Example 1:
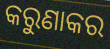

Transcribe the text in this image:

କରୁଣାକର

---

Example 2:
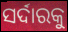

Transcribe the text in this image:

ସର୍ଦାରକୁ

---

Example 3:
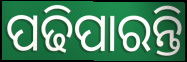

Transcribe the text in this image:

ପଢିପାରନ୍ତି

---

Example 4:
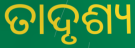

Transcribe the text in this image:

ତାଦୃଶ୍ୟ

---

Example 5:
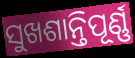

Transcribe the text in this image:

ସୁଖଶାନ୍ତିପୂର୍ଣ୍ଣ